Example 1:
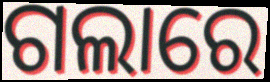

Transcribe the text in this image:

ଗଲାରେ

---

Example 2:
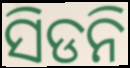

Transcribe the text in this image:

ସିଡନି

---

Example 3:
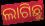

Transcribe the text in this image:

ଲାଗିଛୁ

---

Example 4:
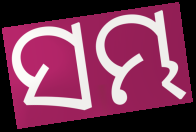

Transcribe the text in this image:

ସମ୍ଭ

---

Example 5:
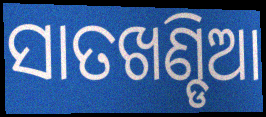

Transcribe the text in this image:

ସାତଖଣ୍ଡିଆ